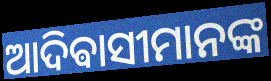
ଆଦିଵାସୀମାନଙ୍କ